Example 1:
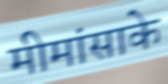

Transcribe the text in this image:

मीमांसाके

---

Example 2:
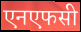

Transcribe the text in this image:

एनएफसी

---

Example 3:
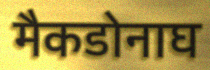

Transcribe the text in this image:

मैकडोनाघ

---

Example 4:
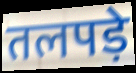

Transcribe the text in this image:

तलपड़े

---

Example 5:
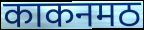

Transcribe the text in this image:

काकनमठ